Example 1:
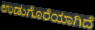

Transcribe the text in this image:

ಉಡುಗೊರೆಯಾಗಿದೆ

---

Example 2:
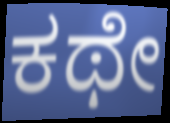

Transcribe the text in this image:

ಕಥೇ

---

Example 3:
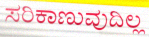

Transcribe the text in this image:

ಸರಿಕಾಣುವುದಿಲ್ಲ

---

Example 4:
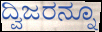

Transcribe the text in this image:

ದ್ವಿಜರನ್ನೂ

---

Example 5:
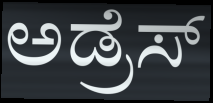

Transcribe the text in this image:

ಅಡ್ರೆಸ್